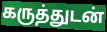
கருத்துடன்